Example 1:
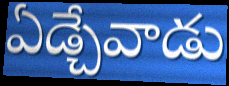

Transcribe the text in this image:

ఏడ్చేవాడు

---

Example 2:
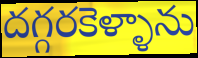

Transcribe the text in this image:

దగ్గరకెళ్ళాను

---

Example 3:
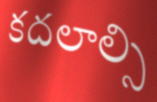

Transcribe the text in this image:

కదలాల్సి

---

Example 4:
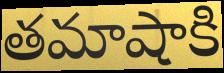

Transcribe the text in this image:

తమాషాకి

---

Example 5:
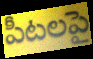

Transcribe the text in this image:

పీటలపై